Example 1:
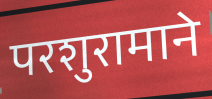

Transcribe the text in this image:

परशुरामाने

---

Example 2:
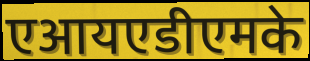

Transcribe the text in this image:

एआयएडीएमके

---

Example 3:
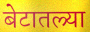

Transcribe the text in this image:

बेटातल्या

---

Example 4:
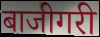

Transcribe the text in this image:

बाजीगरी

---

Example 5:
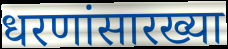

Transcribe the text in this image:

धरणांसारख्या